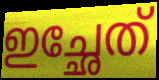
ഇച്ഛേത്